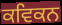
ਕਵਿਕਨ